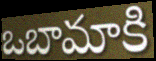
ఒబామాకి